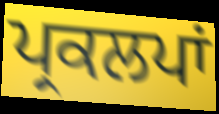
ਪ੍ਰਕਲਪਾਂ